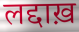
लद्दाख़